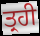
ਤ੍ਰਹੀ